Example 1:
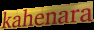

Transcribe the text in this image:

kahenara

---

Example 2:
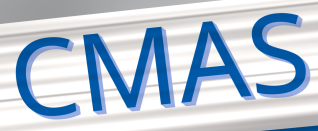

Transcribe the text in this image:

CMAS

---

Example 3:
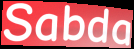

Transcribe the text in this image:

Sabda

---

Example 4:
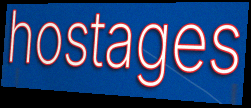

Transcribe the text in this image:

hostages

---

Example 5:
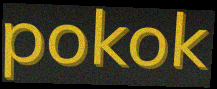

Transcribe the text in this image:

pokok